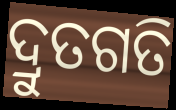
ଦ୍ରୁତଗତି